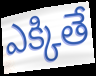
ఎక్కితే